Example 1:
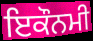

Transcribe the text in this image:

ਇਕੌਨਮੀ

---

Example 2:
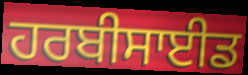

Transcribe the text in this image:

ਹਰਬੀਸਾਈਡ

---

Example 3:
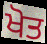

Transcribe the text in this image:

ਖੋਤ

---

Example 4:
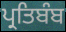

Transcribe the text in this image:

ਪ੍ਰਤਿਬੰਬ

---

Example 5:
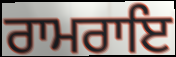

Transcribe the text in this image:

ਰਾਮਰਾਇ